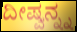
ದೀಷ್ವನ್ನ್ನ